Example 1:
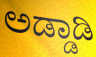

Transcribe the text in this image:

ಅಡ್ಡಾಡಿ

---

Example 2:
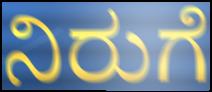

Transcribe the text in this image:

ನಿರುಗೆ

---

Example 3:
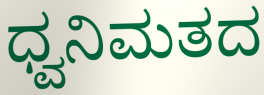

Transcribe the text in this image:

ಧ್ವನಿಮತದ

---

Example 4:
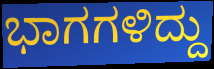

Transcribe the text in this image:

ಭಾಗಗಳಿದ್ದು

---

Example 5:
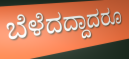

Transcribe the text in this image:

ಬೆಳೆದದ್ದಾದರೂ